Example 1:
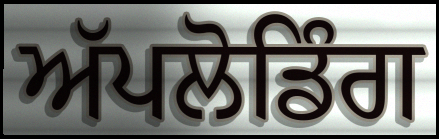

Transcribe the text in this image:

ਅੱਪਲੋਡਿੰਗ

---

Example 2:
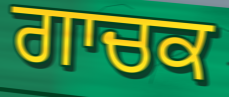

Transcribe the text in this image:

ਗਾਚਕ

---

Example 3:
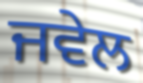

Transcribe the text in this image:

ਜਵੇਲ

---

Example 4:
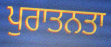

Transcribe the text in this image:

ਪੁਰਾਤਨਤਾ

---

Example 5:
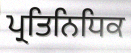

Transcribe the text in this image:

ਪ੍ਰਤਿਨਿਧਿਕ